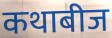
कथाबीज